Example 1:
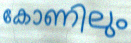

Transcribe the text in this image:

കോണിലും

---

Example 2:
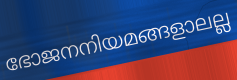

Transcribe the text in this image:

ഭോജനനിയമങ്ങളാലല്ല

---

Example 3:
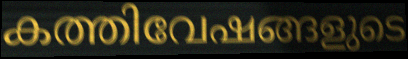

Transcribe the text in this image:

കത്തിവേഷങ്ങളുടെ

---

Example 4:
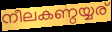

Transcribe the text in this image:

നീലകണ്ഠയ്യര്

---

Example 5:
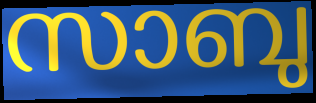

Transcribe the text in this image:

സാബു